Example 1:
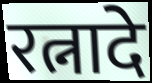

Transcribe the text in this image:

रत्नादे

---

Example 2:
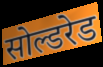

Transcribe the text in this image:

सोल्डरेड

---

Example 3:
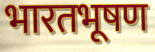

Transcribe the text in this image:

भारतभूषण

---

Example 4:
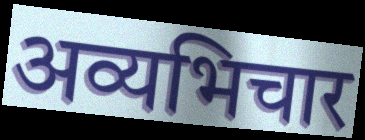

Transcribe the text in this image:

अव्यभिचार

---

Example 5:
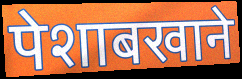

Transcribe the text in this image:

पेशाबखाने